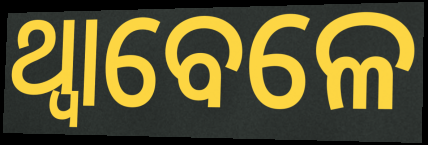
ଥ୍ବାବେଳେ